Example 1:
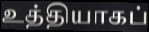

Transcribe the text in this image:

உத்தியாகப்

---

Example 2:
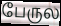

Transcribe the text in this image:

பேருல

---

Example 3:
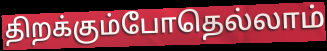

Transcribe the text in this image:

திறக்கும்போதெல்லாம்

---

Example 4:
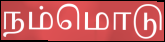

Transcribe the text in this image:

நம்மொடு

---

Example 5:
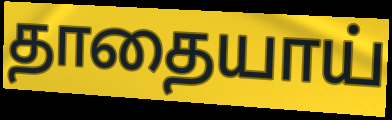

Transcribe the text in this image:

தாதையாய்